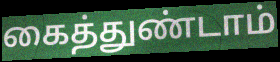
கைத்துண்டாம்